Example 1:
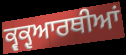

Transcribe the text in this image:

ਕ੍ਵਕ੍ਦਆਰਥੀਆਂ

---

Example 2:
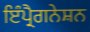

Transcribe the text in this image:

ਇੰਪ੍ਰੈਗਨੇਸ਼ਨ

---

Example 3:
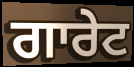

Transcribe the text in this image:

ਗਾਰੇਟ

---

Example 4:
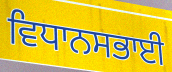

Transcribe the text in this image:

ਵਿਧਾਨਸਭਾਈ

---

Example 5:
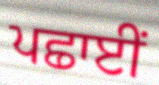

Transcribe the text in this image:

ਪਛਾਈਂ